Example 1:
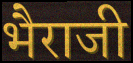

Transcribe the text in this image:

भैराजी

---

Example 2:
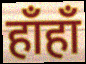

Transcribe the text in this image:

हाँहाँ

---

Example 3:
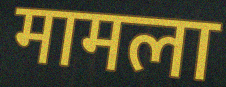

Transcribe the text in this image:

मामला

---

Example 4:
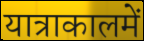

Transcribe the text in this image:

यात्राकालमें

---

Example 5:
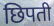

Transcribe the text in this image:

छिपती